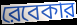
রেবেকার